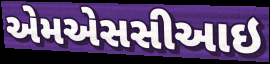
એમએસસીઆઇ